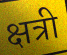
क्षत्री